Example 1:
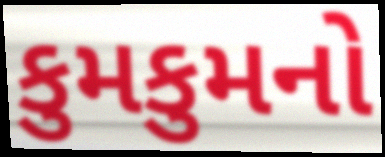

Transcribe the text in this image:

કુમકુમનો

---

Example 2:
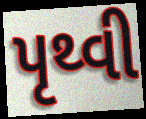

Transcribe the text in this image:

પૃથ્વી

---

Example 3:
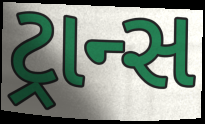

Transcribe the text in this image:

ટ્રાન્સ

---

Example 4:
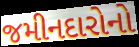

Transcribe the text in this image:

જમીનદારોનો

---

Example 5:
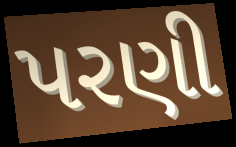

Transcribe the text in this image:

પરણી